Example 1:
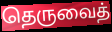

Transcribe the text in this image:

தெருவைத்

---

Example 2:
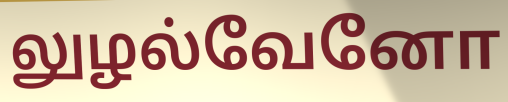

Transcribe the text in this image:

லுழல்வேனோ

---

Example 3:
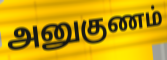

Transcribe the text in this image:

அனுகுணம்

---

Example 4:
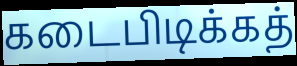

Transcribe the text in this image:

கடைபிடிக்கத்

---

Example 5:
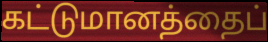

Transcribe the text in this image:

கட்டுமானத்தைப்